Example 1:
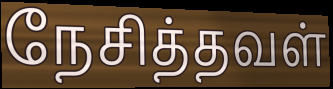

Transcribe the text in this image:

நேசித்தவள்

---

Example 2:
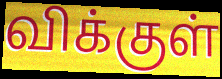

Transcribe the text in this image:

விக்குள்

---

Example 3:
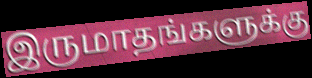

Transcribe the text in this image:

இருமாதங்களுக்கு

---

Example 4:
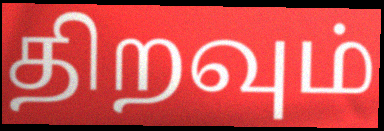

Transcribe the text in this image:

திறவும்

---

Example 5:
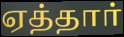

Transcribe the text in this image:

ஏத்தார்